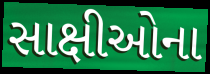
સાક્ષીઓના